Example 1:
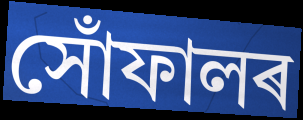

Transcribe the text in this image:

সোঁফালৰ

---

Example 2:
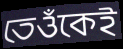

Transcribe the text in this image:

তেওঁকেই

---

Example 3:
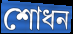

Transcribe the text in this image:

শোধন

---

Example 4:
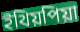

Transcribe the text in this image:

ইথিয়পিয়া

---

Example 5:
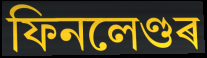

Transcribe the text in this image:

ফিনলেণ্ডৰ